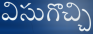
విసుగొచ్చి